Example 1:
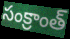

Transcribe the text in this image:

సంక్రాంత్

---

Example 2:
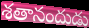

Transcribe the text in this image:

శతానందుడు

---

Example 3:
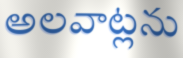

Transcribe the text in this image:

అలవాట్లను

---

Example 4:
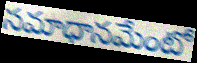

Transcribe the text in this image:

సమాధానమేంటో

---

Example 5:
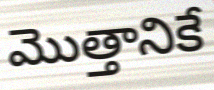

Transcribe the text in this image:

మొత్తానికే